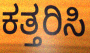
ಕತ್ತರಿಸಿ